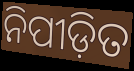
ନିପୀଡ଼ିତ